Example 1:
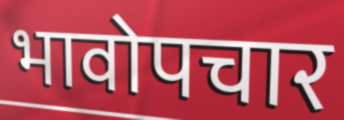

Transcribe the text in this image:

भावोपचार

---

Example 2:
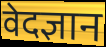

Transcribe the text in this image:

वेदज्ञान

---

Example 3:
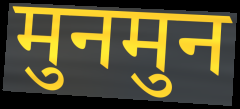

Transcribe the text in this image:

मुनमुन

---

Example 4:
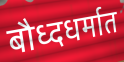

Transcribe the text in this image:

बौध्दधर्मात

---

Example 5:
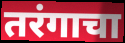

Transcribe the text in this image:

तरंगाचा